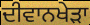
ਦੀਵਾਨਖੇੜਾ